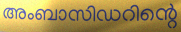
അംബാസിഡറിന്റെ